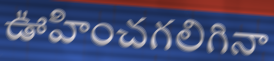
ఊహించగలిగినా